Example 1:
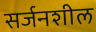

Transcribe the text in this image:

सर्जनशील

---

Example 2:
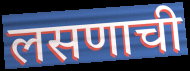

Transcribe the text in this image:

लसणाची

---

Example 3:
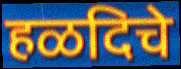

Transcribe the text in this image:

हळदिचे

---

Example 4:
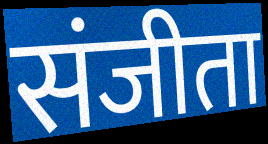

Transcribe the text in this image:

संजीता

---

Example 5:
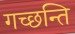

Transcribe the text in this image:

गच्छन्ति